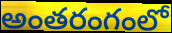
అంతరంగంలో